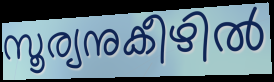
സൂര്യനുകീഴിൽ